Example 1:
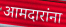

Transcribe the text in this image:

आमदारांना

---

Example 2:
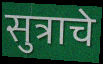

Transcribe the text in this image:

सुत्राचे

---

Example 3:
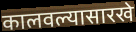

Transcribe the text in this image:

कालवल्यासारखे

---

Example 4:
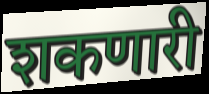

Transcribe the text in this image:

शकणारी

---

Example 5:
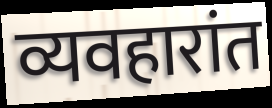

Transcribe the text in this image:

व्यवहारांत